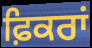
ਫ਼ਿਕਰਾਂ